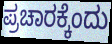
ಪ್ರಚಾರಕ್ಕೆಂದು